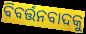
ବିବର୍ତ୍ତନବାଦକୁ